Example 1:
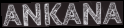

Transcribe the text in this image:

ANKANA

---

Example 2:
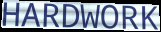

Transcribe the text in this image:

HARDWORK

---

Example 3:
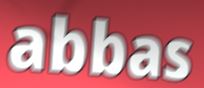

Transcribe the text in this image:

abbas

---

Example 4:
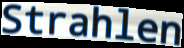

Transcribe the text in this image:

Strahlen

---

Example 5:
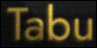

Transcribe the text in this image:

Tabu